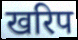
खरिप